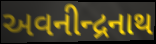
અવનીન્દ્રનાથ